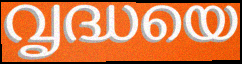
വൃദ്ധയെ